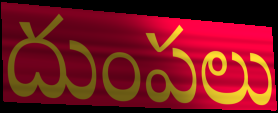
దుంపలు